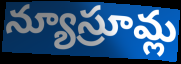
న్యూస్రూమ్ల